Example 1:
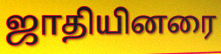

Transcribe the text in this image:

ஜாதியினரை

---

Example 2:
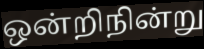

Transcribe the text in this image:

ஒன்றிநின்று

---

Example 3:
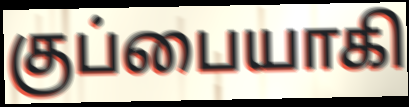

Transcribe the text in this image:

குப்பையாகி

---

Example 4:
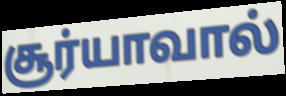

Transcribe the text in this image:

சூர்யாவால்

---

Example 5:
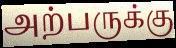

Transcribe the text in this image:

அற்பருக்கு